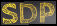
SDP